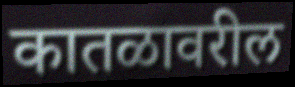
कातळावरील